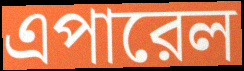
এপারেল